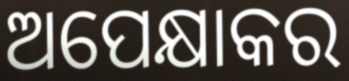
ଅପେକ୍ଷାକର